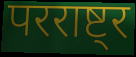
परराष्ट्र